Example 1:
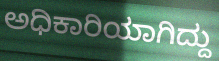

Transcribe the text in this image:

ಅಧಿಕಾರಿಯಾಗಿದ್ದು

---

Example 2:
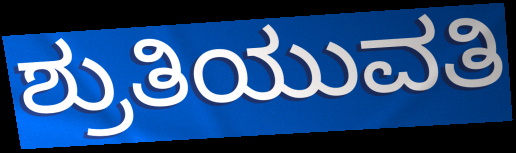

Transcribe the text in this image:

ಶ್ರುತಿಯುವತಿ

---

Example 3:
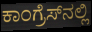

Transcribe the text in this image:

ಕಾಂಗ್ರೆಸ್‍ನಲ್ಲಿ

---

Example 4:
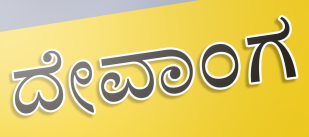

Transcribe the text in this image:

ದೇವಾಂಗ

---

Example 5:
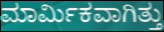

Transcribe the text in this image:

ಮಾರ್ಮಿಕವಾಗಿತ್ತು